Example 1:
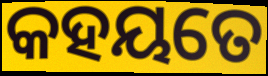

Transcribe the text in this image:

କହୟତେ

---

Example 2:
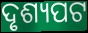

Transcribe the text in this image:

ଦୃଶ୍ୟପଟ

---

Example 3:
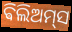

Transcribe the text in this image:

ଵିଲିଅମ୍‌ସ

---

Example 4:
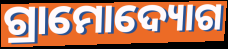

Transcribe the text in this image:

ଗ୍ରାମୋଦ୍ୟୋଗ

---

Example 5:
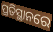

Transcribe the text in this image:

ପ୍ରତିସ୍ଥାନରେ